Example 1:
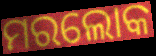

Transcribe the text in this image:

ମରଲୋକ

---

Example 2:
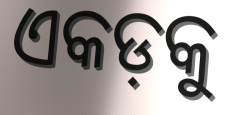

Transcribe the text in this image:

ଏକଡ଼କୁ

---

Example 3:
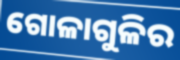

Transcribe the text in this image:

ଗୋଳାଗୁଳିର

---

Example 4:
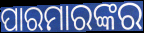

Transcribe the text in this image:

ପାରମାରଙ୍କର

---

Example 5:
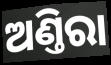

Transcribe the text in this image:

ଅଣ୍ତିରା